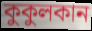
কুকুলকান